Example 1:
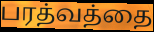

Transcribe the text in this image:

பரத்வத்தை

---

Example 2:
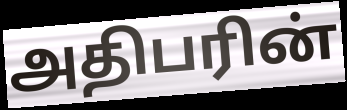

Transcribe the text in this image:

அதிபரின்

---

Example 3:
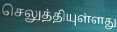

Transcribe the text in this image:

செலுத்தியுள்ளது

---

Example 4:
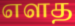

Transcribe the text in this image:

எளத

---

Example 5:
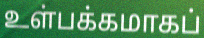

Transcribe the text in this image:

உள்பக்கமாகப்